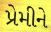
પ્રેમીને